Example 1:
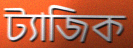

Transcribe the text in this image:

ট্যাজিক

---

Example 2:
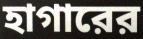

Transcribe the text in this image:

হাগারের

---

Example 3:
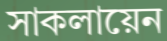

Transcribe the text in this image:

সাকলায়েন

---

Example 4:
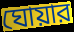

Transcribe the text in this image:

ঘোয়ার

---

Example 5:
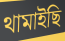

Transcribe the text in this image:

থামাইছি